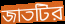
জাতটির